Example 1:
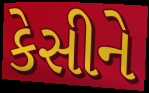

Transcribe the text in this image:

કેસીને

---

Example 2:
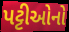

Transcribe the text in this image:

પટ્ટીઓનો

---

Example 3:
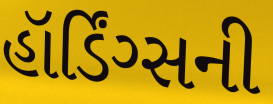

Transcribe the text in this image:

હૉર્ડિંગ્સની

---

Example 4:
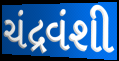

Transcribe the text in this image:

ચંદ્રવંશી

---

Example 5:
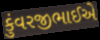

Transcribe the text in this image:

કુંવરજીભાઈએ